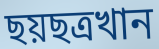
ছয়ছত্রখান